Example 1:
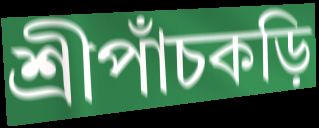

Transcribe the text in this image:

শ্রীপাঁচকড়ি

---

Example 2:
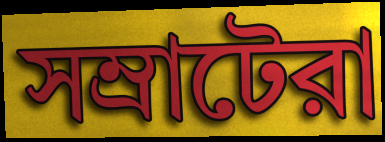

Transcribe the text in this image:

সম্রাটেরা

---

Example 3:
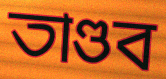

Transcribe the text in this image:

তাণ্ডব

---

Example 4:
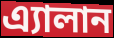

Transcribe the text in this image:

এ্যালান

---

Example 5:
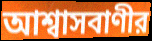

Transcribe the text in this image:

আশ্বাসবাণীর